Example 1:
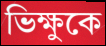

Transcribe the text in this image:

ভিক্ষুকে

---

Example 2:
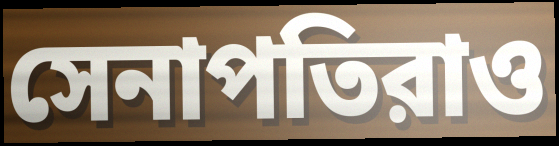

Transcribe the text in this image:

সেনাপতিরাও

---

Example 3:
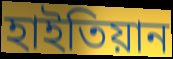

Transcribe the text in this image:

হাইতিয়ান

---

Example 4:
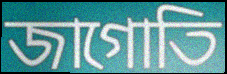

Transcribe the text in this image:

জাগোতি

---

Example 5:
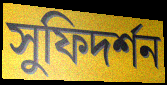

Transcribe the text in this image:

সুফিদর্শন